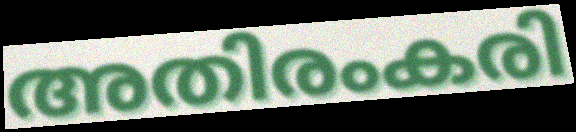
അതിരംകരി